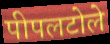
पीपलटोले